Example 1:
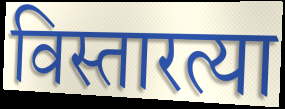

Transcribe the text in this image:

विस्तारत्या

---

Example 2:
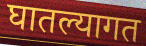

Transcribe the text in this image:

घातल्यागत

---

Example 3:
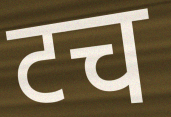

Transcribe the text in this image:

टच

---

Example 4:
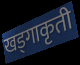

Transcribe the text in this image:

खड्गाकृती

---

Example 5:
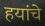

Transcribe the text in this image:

हयांचे